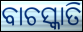
ବାଚସ୍କାତି